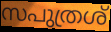
സപുത്രശ്